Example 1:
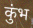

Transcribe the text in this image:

कुंभ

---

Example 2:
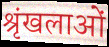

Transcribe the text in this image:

श्रृंखलाओं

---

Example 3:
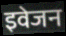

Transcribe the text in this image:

इवेजन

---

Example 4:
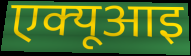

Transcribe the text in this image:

एक्यूआइ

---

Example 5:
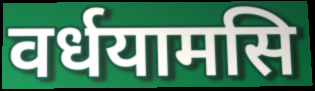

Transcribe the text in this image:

वर्धयामसि